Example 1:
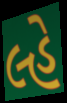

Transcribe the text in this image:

લ્હે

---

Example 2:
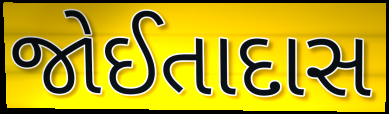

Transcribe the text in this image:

જોઈતાદાસ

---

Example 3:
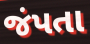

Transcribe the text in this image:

જંપતા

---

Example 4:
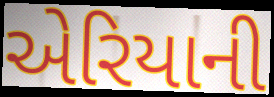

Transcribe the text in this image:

એરિયાની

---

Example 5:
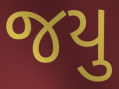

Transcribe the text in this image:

જયુ